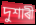
দুশাৰী